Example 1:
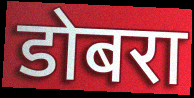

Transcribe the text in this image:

डोबरा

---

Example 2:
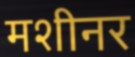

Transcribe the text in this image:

मशीनर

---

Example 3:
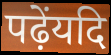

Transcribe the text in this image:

पढ़ेंयदि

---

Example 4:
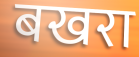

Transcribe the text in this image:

बखरा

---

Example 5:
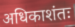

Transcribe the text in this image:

अधिकाशंतः